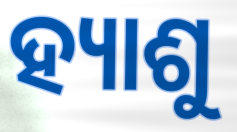
ହ୍ୟାଶୁ